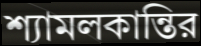
শ্যামলকান্তির